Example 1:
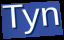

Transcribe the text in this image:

Tyn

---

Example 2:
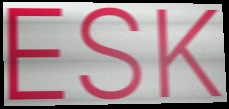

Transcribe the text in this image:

ESK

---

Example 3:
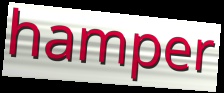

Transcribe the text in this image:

hamper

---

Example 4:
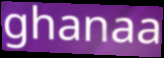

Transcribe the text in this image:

ghanaa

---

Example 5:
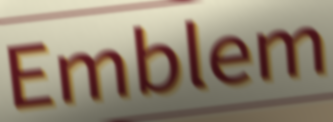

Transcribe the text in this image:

Emblem